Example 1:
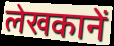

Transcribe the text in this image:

लेखकानें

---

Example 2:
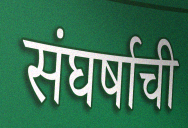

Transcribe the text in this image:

संघर्षाची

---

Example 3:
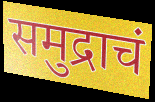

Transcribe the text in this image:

समुद्राचं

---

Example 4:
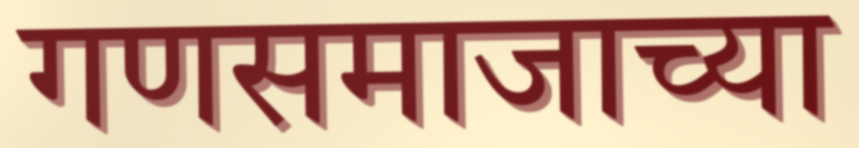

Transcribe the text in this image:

गणसमाजाच्या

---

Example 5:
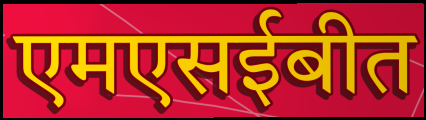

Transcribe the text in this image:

एमएसईबीत